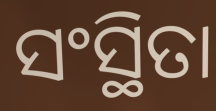
ସଂସ୍ଥିତା